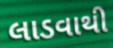
લાડવાથી